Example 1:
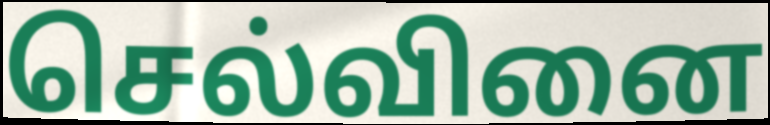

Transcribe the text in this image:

செல்வினை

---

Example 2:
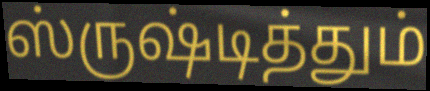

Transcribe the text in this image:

ஸ்ருஷ்டித்தும்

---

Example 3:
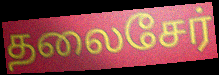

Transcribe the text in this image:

தலைசேர்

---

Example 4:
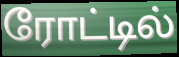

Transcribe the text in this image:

ரோட்டில்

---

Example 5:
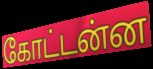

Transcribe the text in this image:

கோட்டன்ன